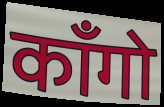
काँगो